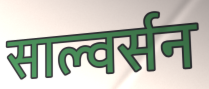
साल्वर्सन